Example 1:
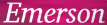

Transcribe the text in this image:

Emerson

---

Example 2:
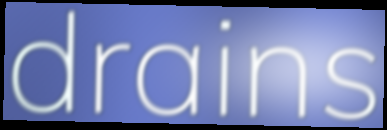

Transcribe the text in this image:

drains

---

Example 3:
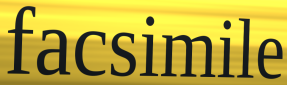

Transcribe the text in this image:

facsimile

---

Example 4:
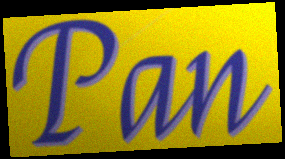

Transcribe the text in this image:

Pan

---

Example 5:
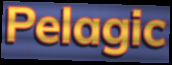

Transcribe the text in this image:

Pelagic